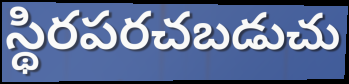
స్థిరపరచబడుచు